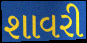
શાવરી